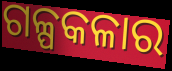
ଗଳ୍ପକଳାର